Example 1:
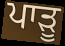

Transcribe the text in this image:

ਪਾੜੂ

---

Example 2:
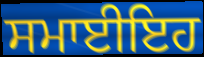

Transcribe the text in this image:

ਸਮਾਈਇਹ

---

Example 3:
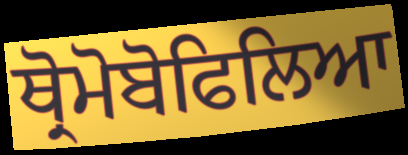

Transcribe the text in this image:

ਥ੍ਰੋਮੋਬੋਫਿਲਿਆ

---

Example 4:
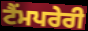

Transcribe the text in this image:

ਟੈਂਮਪਰੇਰੀ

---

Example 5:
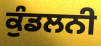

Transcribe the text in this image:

ਕੁੰਡਲਨੀ